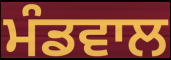
ਮੰਡਵਾਲ